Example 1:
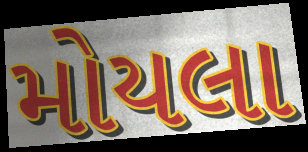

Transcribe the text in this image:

મોયલા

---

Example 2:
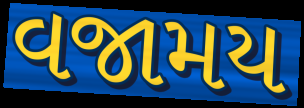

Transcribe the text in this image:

વજામય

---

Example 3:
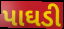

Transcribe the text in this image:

પાઘડી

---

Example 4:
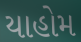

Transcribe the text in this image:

યાહોમ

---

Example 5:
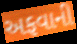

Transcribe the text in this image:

અફવાની